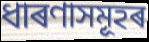
ধাৰণাসমূহৰ